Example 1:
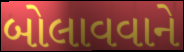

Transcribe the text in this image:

બોલાવવાને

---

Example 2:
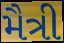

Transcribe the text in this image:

મૈત્રી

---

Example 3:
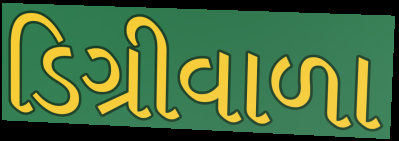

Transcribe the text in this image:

ડિગ્રીવાળા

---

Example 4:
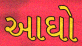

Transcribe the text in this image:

આઘો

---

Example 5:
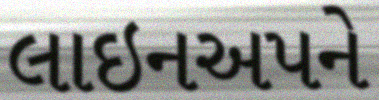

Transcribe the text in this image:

લાઇનઅપને